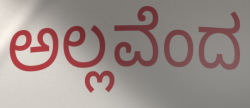
ಅಲ್ಲವೆಂದ